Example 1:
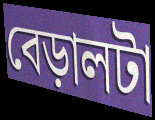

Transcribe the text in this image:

বেড়ালটা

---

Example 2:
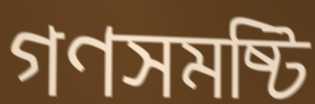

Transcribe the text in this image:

গণসমষ্টি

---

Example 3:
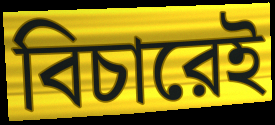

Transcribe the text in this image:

বিচারেই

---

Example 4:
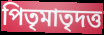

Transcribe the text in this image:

পিতৃমাতৃদত্ত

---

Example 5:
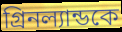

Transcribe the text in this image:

গ্রিনল্যান্ডকে